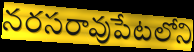
నరసరావుపేటలోని